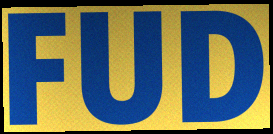
FUD